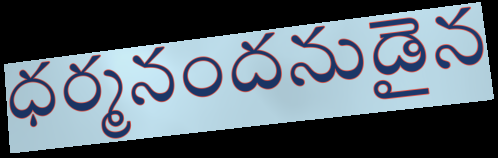
ధర్మనందనుడైన